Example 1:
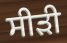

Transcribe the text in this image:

ਸੀੜੀ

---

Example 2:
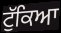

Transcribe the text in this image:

ਟੁੱਕਿਆ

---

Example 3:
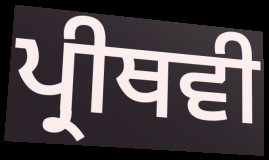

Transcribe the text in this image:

ਪ੍ਰੀਥਵੀ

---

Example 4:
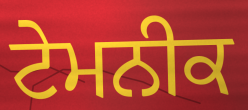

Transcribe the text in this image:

ਟੇਮਨੀਕ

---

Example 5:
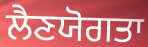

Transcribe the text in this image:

ਲੈਣਯੋਗਤਾ